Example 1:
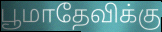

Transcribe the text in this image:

பூமாதேவிக்கு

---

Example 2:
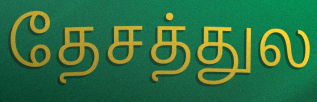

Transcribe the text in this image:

தேசத்துல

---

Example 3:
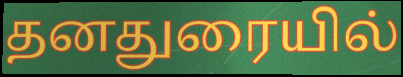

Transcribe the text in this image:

தனதுரையில்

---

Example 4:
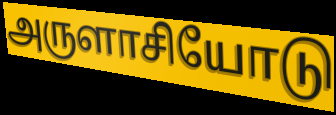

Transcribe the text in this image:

அருளாசியோடு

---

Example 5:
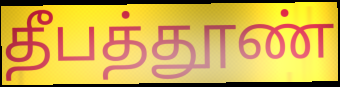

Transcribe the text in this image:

தீபத்தூண்